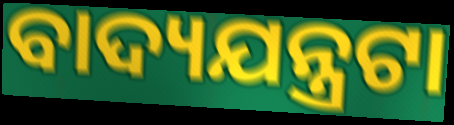
ବାଦ୍ୟଯନ୍ତ୍ରଟା